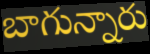
బాగున్నారు